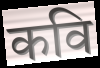
कवि